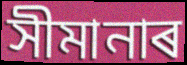
সীমানাৰ